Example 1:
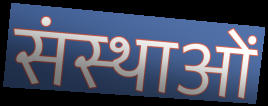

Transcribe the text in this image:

संस्थाओं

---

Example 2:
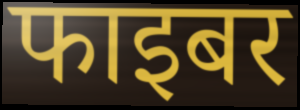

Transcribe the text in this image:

फाइबर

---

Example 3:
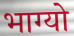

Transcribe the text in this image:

भाग्यो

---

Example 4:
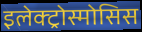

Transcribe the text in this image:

इलेक्ट्रोस्मोसिस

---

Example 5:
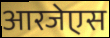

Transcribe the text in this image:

आरजेएस